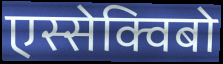
एस्सेक्विबो